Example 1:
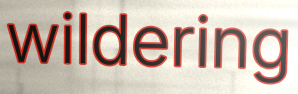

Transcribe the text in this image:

wildering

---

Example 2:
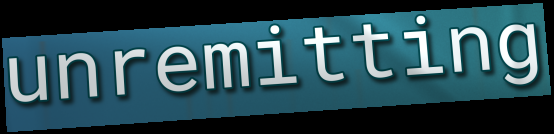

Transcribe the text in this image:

unremitting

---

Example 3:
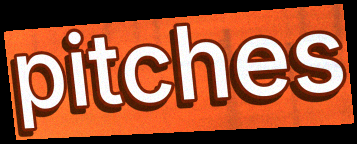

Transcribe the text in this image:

pitches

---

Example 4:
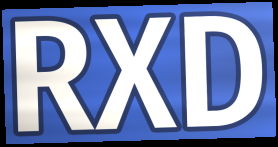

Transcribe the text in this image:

RXD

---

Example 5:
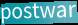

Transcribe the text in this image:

postwar